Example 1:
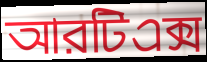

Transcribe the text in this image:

আরটিএক্স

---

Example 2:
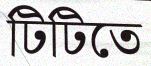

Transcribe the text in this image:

টিটিতে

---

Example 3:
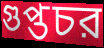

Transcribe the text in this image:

গুপ্তচর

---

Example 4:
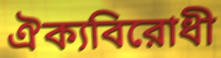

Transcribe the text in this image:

ঐক্যবিরোধী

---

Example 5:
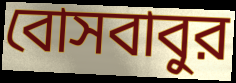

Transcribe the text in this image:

বোসবাবুর